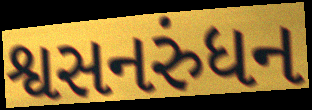
શ્વસનરુંધન